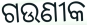
ଗଉଣୀକ